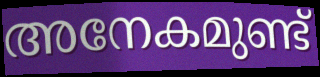
അനേകമുണ്ട്